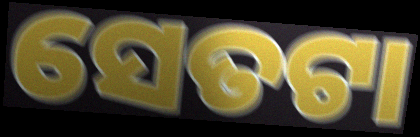
ସେତଟା